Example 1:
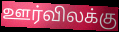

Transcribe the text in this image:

ஊர்விலக்கு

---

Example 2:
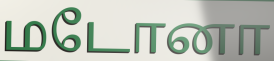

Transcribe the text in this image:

மடோனா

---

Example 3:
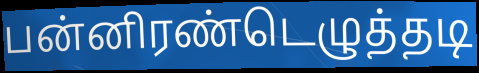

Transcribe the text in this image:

பன்னிரண்டெழுத்தடி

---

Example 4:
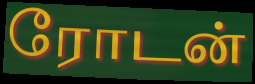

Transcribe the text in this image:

ரோடன்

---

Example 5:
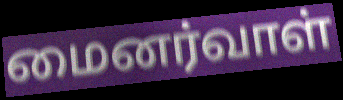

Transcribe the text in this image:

மைனர்வாள்